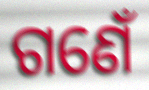
ଗଣେଁ